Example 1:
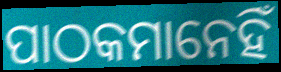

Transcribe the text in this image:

ପାଠକମାନେହିଁ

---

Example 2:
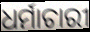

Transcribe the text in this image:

ଧର୍ମାଚାରୀ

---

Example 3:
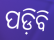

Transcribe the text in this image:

ପଡ଼ିବି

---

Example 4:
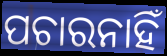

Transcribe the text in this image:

ପଚାରନାହିଁ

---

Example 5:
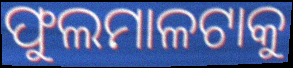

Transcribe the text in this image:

ଫୁଲମାଳଟାକୁ